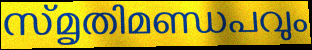
സ്മൃതിമണ്ഡപവും